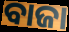
ବାଜା